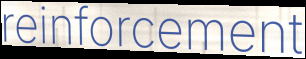
reinforcement